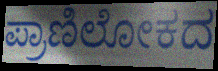
ಪ್ರಾಣಿಲೋಕದ